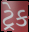
ટ્રેક